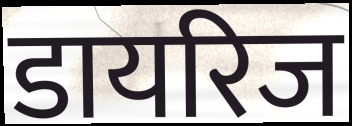
डायरिज